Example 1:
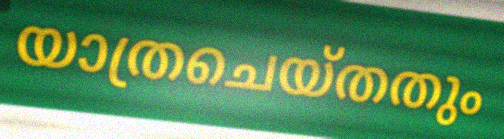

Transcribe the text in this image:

യാത്രചെയ്തതും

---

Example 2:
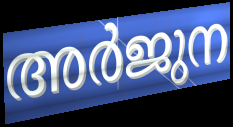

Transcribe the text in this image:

അർജുന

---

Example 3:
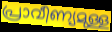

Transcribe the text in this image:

പ്രാവീണ്യമുള്ള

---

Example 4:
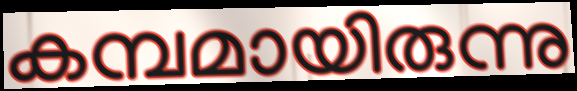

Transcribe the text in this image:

കമ്പമായിരുന്നു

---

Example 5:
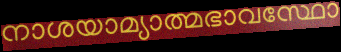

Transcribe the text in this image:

നാശയാമ്യാത്മഭാവസ്ഥോ